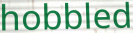
hobbled